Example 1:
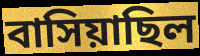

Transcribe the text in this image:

বাসিয়াছিল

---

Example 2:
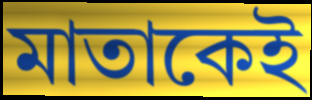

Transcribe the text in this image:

মাতাকেই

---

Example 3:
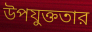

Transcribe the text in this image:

উপযুক্ততার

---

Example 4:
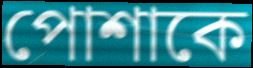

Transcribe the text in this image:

পোশাকে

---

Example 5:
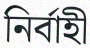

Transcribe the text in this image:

নির্বাহী